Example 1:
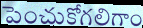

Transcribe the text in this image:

పెంచుకోగలిగాం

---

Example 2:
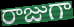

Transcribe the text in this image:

రాజుగా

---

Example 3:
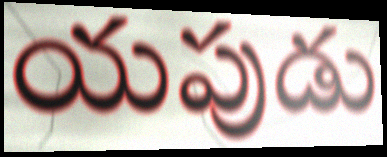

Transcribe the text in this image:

యపుడు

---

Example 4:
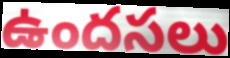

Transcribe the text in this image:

ఉందసలు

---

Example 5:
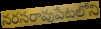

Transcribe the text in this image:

నరసరావుపేటలోని